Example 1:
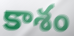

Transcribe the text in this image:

కాశం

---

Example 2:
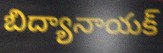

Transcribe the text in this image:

బిద్యానాయక్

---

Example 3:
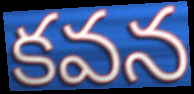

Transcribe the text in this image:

కవన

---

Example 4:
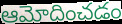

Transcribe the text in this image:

ఆమోదించడం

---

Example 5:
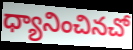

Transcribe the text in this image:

ధ్యానించినచో